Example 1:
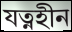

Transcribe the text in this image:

যত্নহীন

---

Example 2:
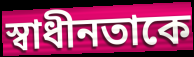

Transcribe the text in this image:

স্বাধীনতাকে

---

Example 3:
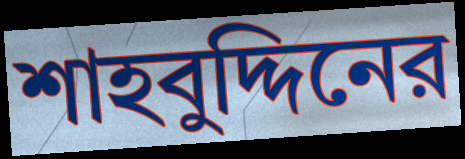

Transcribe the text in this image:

শাহবুদ্দিনের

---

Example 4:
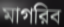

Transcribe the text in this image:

মাগরিব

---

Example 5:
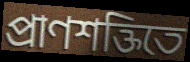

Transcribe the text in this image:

প্রাণশক্তিতে